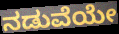
ನಡುವೆಯೇ